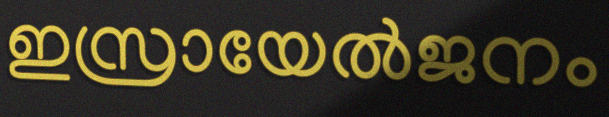
ഇസ്രായേൽജനം